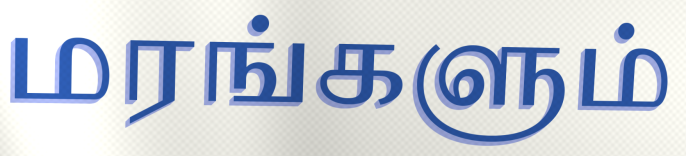
மரங்களும்